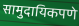
सामुदायिकपणे